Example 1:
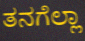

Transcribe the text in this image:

ತನಗೆಲ್ಲಾ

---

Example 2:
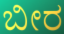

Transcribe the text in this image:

ಬೀರ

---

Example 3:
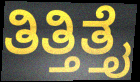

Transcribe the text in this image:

ತಿತ್ತಿತ್ತೈ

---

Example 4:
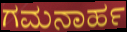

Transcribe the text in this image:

ಗಮನಾರ್ಹ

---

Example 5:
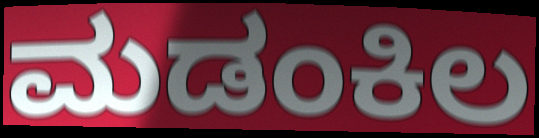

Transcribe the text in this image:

ಮಡಂಕಿಲ